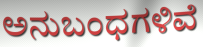
ಅನುಬಂಧಗಳಿವೆ